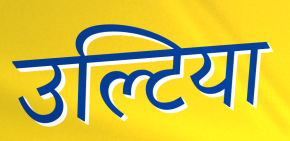
उल्टिया